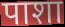
पाशा